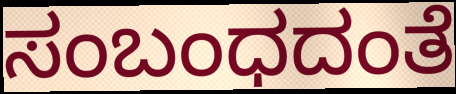
ಸಂಬಂಧದಂತೆ